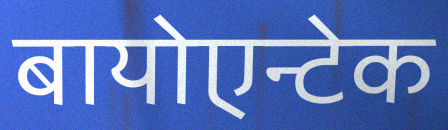
बायोएन्टेक